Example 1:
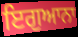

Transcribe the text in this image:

ਇਗੁਆਨਾ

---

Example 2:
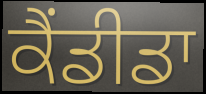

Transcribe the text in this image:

ਕੈਂਡੀਡਾ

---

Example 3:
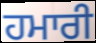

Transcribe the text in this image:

ਹਮਾਰੀ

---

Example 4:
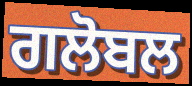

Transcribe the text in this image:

ਗਲੋਬਲ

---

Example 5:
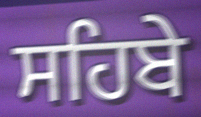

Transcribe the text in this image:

ਸਹਿਬੇ